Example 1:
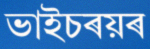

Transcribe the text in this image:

ভাইচৰয়ৰ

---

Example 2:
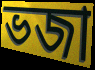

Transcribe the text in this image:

ভজা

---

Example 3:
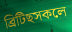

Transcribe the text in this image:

ব্ৰিটিছসকলে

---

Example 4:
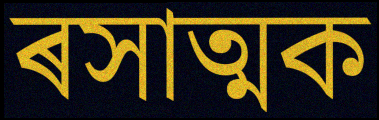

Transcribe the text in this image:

ৰসাত্মক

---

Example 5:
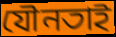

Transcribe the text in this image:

যৌনতাই